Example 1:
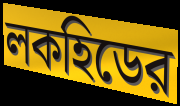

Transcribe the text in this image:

লকহিডের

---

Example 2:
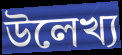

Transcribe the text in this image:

উলেখ্য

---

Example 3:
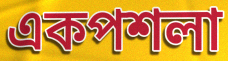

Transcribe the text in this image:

একপশলা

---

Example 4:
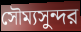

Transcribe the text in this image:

সৌম্যসুন্দর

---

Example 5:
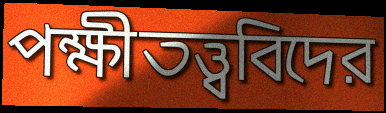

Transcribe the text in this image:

পক্ষীতত্ত্ববিদের